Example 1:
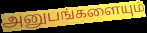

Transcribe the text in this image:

அனுபங்களையும்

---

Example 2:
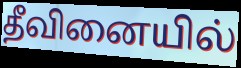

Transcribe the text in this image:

தீவினையில்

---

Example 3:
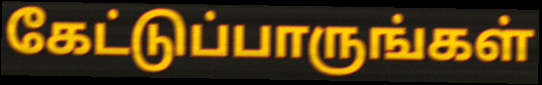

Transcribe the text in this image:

கேட்டுப்பாருங்கள்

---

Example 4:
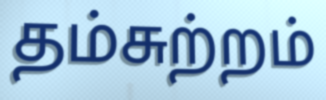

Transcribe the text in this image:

தம்சுற்றம்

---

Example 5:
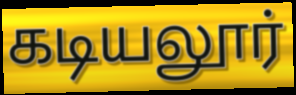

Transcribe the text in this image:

கடியலூர்